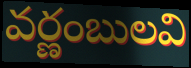
వర్ణంబులవి